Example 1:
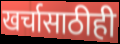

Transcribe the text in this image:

खर्चासाठीही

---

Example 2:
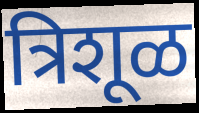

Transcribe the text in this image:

त्रिशूळ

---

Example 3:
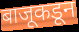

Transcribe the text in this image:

बाजूकडून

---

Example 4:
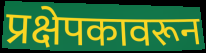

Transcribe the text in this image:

प्रक्षेपकावरून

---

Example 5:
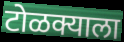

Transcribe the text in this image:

टोळक्याला